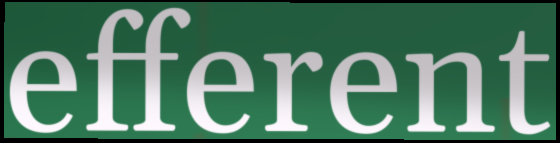
efferent